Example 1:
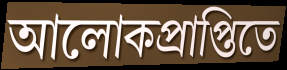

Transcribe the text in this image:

আলোকপ্রাপ্তিতে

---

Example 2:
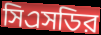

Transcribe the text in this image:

সিএসডির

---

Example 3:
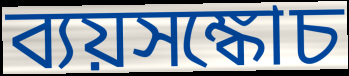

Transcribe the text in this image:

ব্যয়সঙ্কোচ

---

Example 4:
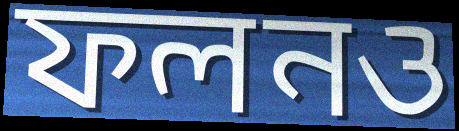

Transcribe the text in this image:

ফলনও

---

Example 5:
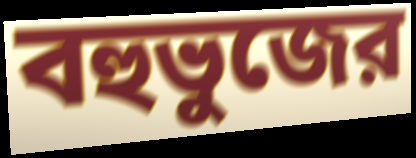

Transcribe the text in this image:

বহুভুজের